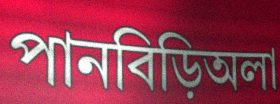
পানবিড়িঅলা